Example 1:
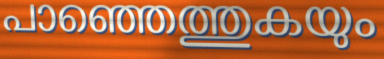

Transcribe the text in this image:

പാഞ്ഞെത്തുകയും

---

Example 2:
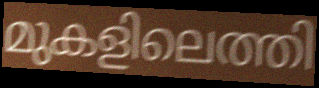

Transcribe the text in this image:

മുകളിലെത്തി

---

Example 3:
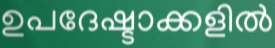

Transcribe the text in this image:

ഉപദേഷ്ടാക്കളിൽ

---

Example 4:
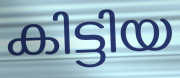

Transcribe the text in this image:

കിട്ടിയ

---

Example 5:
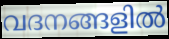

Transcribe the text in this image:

വദനങ്ങളിൽ